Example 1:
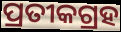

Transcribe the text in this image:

ପ୍ରତୀକଗ୍ରହ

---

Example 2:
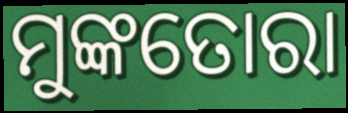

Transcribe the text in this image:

ମୁଙ୍କତୋରା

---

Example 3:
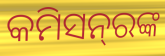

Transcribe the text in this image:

କମିସନ୍‍ରଙ୍କ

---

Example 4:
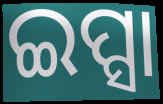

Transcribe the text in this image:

ଇପ୍ସା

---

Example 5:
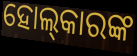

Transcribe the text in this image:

ହୋଲ୍‍କାରଙ୍କ